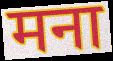
मना